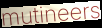
mutineers